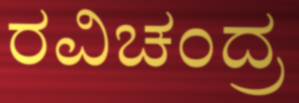
ರವಿಚಂದ್ರ